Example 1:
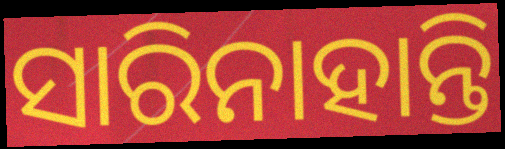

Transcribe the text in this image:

ସାରିନାହାନ୍ତି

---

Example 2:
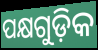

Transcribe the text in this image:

ପକ୍ଷଗୁଡ଼ିକ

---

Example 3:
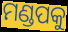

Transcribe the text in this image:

ମଣ୍ଡପକୁ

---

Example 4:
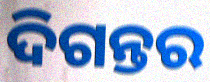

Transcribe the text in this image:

ଦିଗନ୍ତର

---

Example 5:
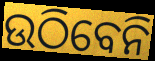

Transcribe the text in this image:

ଉଠିବେନି